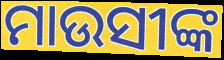
ମାଉସୀଙ୍କ